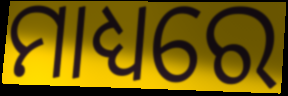
ମାଧ୍ୟରେ